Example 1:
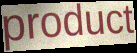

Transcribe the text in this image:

product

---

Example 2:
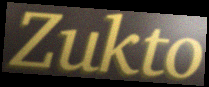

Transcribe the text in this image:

Zukto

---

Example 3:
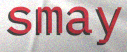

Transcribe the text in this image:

smay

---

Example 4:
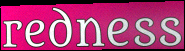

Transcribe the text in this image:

redness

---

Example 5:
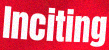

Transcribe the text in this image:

Inciting